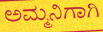
ಅಮ್ಮನಿಗಾಗಿ